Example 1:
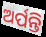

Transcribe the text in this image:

ଅର୍ପନ୍ତି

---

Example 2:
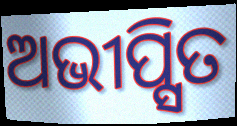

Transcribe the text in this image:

ଅଭୀପ୍ସିତ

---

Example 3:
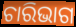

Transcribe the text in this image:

ଚାରିଭାଗ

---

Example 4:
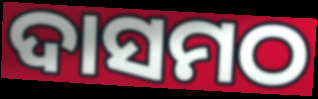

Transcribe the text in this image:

ଦାସମଠ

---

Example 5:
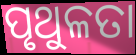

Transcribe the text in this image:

ପୃଥୁଳତା